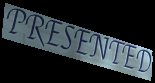
PRESENTED